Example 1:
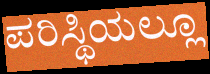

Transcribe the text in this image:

ಪರಿಸ್ಥಿಯಲ್ಲೂ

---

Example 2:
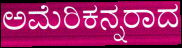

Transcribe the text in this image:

ಅಮೆರಿಕನ್ನರಾದ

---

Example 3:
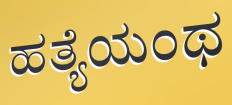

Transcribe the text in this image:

ಹತ್ಯೆಯಂಥ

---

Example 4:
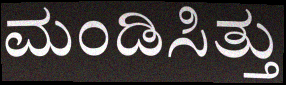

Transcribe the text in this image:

ಮಂಡಿಸಿತ್ತು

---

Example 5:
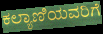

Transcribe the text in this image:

ಕಲ್ಯಾಣಿಯವರಿಗೆ